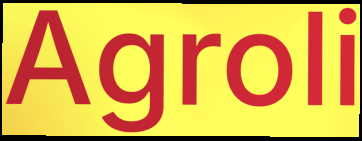
Agroli